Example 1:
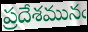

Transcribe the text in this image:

ప్రదేశమునఁ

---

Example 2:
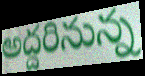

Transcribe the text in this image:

అద్దరినున్న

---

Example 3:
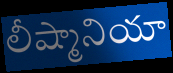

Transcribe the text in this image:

లీష్మానియా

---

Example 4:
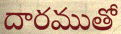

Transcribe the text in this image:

దారముతో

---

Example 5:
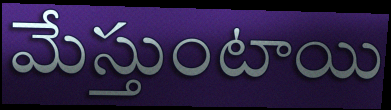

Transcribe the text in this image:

మేస్తుంటాయి